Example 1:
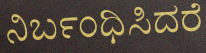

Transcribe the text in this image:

ನಿರ್ಬಂಧಿಸಿದರೆ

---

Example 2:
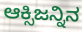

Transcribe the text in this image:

ಆಕ್ಸಿಜನ್ನಿನ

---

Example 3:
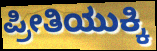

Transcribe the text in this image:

ಪ್ರೀತಿಯುಕ್ಕಿ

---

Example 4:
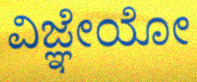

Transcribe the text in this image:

ವಿಜ್ಞೇಯೋ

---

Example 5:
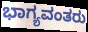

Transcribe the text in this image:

ಭಾಗ್ಯವಂತರು